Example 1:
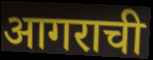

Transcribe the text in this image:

आगराची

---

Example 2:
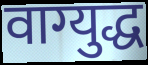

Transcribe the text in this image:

वाग्युद्ध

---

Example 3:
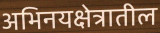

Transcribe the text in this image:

अभिनयक्षेत्रातील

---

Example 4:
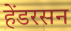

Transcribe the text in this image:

हेंडरसन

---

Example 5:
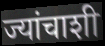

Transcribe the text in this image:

ज्यांचाशी